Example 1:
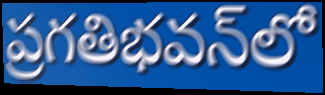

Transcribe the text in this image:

ప్రగతిభవన్‌లో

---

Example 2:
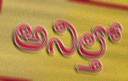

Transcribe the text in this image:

అనిల్తో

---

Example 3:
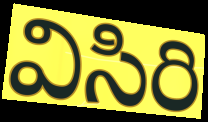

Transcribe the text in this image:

విసిరి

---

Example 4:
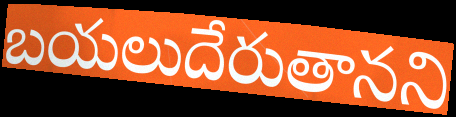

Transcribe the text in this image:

బయలుదేరుతానని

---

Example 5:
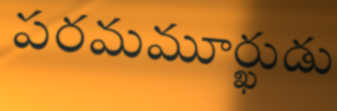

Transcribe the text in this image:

పరమమూర్ఖుడు